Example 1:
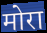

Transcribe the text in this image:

मोरा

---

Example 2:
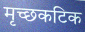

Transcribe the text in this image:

मृच्छकटिक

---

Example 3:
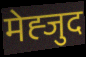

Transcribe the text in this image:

मेह्जुद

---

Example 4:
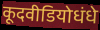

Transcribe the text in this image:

कूदवीडियोधंधे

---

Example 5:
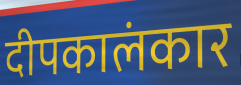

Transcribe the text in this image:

दीपकालंकार